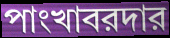
পাংখাবরদার